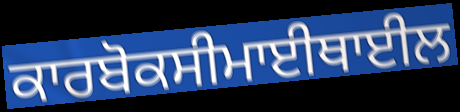
ਕਾਰਬੋਕਸੀਮਾਈਥਾਈਲ